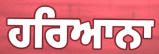
ਹਰਿਆਨਾ